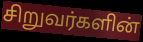
சிறுவர்களின்